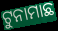
ଟୁନାମାଛ